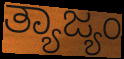
ತ್ಯಾಜ್ಯಂ